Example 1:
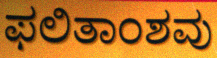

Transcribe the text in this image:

ಫಲಿತಾಂಶವು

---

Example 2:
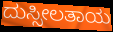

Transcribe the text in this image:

ದುಸ್ಸೀಲತಾಯ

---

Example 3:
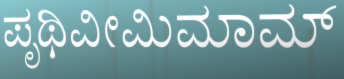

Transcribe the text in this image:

ಪೃಥಿವೀಮಿಮಾಮ್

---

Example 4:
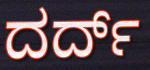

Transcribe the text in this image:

ದರ್ದ್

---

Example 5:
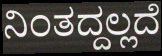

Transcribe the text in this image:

ನಿಂತದ್ದಲ್ಲದೆ